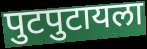
पुटपुटायला